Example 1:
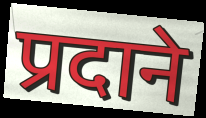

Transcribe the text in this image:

प्रदाने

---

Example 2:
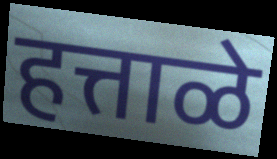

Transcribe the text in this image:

हत्ताळे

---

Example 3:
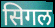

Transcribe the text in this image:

सिगल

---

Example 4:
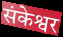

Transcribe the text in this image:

संकेश्वर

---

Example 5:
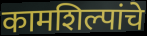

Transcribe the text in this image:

कामशिल्पांचे